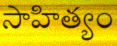
సాహిత్యం